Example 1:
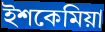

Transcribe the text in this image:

ইশকেমিয়া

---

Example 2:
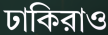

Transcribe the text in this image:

ঢাকিরাও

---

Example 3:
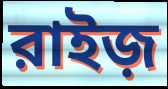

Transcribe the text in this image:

রাইজ়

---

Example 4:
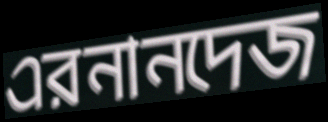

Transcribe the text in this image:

এরনানদেজ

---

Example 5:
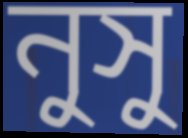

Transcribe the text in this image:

নুসু